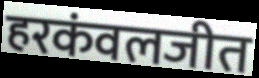
हरकंवलजीत